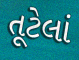
તૂટેલાં